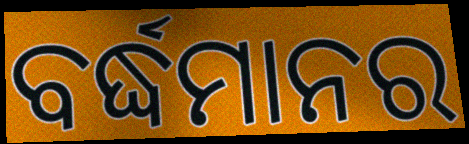
ବର୍ଦ୍ଧମାନର